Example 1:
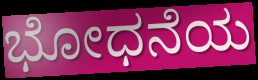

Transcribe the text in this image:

ಭೋಧನೆಯ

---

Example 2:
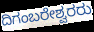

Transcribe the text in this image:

ದಿಗಂಬರೇಶ್ವರರು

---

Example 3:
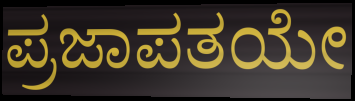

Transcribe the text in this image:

ಪ್ರಜಾಪತಯೇ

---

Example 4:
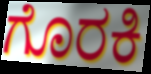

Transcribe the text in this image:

ಗೊರಕಿ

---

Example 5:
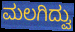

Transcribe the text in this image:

ಮಲಗಿದ್ವು